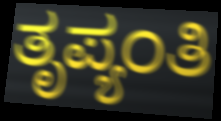
ತೃಪ್ಯಂತಿ